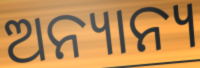
ଅନ୍ଯାନ୍ଯ